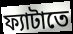
ফ্যাটাতে